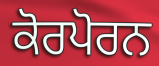
ਕੋਰਪੋਰਨ